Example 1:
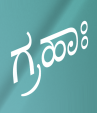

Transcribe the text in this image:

ಗ್ರಹಾಃ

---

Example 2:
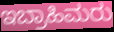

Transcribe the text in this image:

ಇಬ್ರಾಹಿಮರು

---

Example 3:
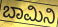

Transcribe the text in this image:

ಬಾಮಿನಿ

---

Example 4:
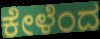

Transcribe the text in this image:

ಕೇಳೆಂದ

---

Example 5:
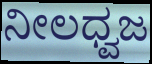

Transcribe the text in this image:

ನೀಲಧ್ವಜ